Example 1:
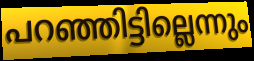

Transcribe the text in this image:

പറഞ്ഞിട്ടില്ലെന്നും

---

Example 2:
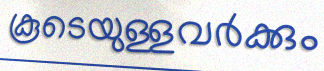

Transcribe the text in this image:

കൂടെയുള്ളവർക്കും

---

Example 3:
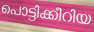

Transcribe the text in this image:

പൊട്ടിക്കീറിയ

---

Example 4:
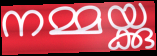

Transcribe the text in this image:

നമ്മയ്ക്കു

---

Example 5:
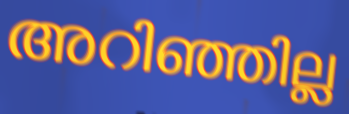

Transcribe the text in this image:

അറിഞ്ഞില്ല